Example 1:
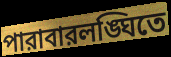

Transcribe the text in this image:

পারাবারলঙ্ঘিতে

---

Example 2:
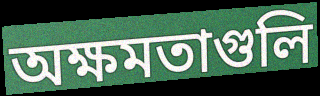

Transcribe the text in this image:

অক্ষমতাগুলি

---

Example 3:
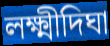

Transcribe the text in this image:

লক্ষ্মীদিঘা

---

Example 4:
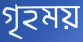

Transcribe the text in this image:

গৃহময়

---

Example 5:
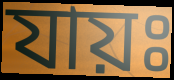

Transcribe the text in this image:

যায়ঃ